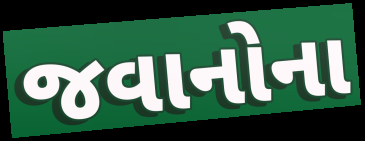
જવાનોના